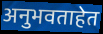
अनुभवताहेत